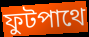
ফুটপাথে